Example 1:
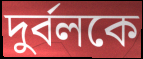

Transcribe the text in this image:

দুর্বলকে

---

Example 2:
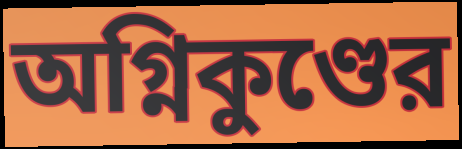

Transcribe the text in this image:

অগ্নিকুণ্ডের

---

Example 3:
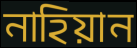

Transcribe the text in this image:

নাহিয়ান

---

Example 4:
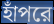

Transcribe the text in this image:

হাঁপরে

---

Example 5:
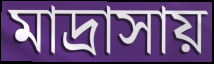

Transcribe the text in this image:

মাদ্রাসায়